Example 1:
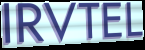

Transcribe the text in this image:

IRVTEL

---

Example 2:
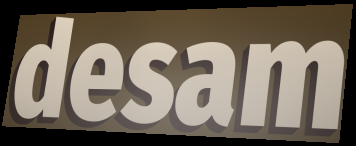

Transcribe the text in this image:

desam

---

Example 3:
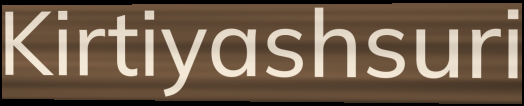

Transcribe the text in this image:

Kirtiyashsuri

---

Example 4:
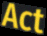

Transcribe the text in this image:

Act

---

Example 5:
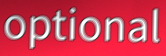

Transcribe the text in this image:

optional